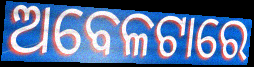
ଅବେଳଟାରେ